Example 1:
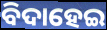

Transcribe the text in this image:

ବିଦାହେଇ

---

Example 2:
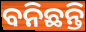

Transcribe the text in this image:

ବନିଛନ୍ତି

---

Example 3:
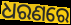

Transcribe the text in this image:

ଧରଣରେ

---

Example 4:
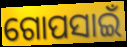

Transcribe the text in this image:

ଗୋପସାଇଁ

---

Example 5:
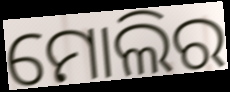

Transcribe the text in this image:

ମୋଲିର